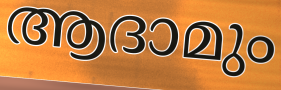
ആദാമും